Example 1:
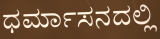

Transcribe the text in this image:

ಧರ್ಮಾಸನದಲ್ಲಿ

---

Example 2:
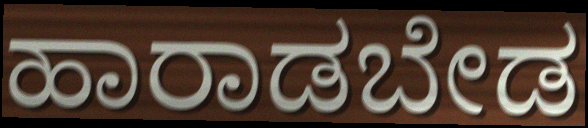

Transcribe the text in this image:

ಹಾರಾಡಬೇಡ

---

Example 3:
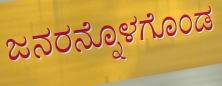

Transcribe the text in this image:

ಜನರನ್ನೊಳಗೊಂಡ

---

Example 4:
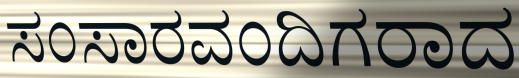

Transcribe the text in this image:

ಸಂಸಾರವಂದಿಗರಾದ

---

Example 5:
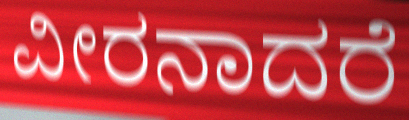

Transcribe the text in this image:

ವೀರನಾದರೆ